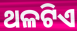
ଥଳଟିଏ